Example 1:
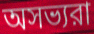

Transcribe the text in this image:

অসভ্যরা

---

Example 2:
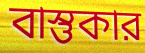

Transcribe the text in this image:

বাস্তুকার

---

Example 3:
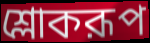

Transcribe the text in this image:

শ্লোকরূপ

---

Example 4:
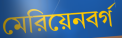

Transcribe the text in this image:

মেরিয়েনবর্গ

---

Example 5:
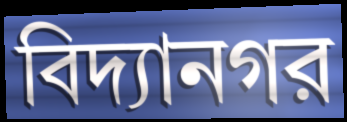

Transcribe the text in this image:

বিদ্যানগর